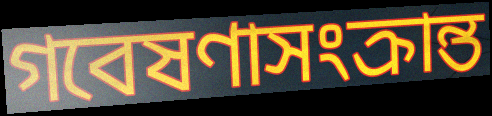
গবেষণাসংক্রান্ত